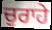
ਚੁਰਾਹੇ